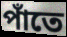
পাঁতে